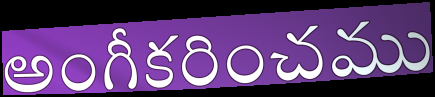
అంగీకరించము